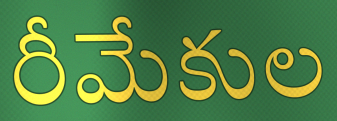
రీమేకుల